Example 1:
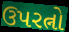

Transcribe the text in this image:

ઉપરત્નો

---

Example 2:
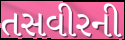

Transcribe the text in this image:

તસવીરની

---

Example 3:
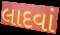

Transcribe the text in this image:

લાદવાં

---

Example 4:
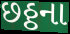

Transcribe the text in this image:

છઠ્ઠના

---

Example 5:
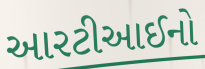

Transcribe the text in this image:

આરટીઆઈનો